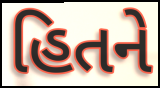
હિતને